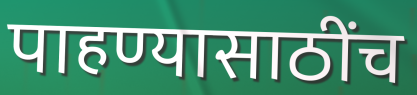
पाहण्यासाठींच